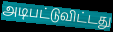
அடிபட்டுவிட்டது